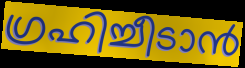
ഗ്രഹിച്ചീടാൻ